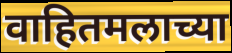
वाहितमलाच्या